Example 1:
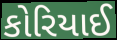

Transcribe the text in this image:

કોરિયાઈ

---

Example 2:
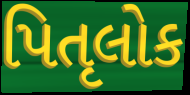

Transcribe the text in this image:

પિતૃલોક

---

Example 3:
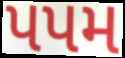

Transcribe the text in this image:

પપમ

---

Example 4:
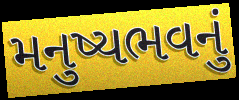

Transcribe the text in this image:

મનુષ્યભવનું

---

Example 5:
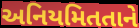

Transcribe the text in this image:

અનિયમિતતાને